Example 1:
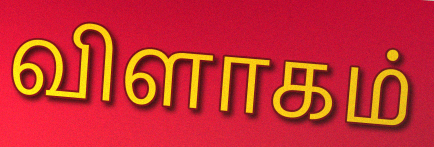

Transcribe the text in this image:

விளாகம்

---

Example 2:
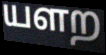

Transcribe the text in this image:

யளற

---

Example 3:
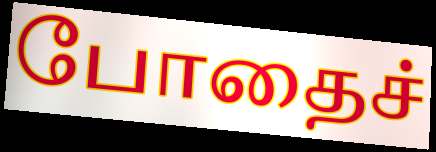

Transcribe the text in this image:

போதைச்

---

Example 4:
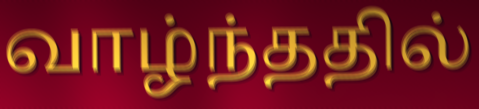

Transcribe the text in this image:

வாழ்ந்ததில்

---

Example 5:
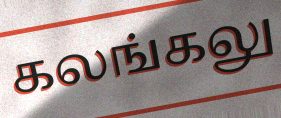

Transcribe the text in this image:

கலங்கலு